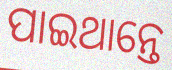
ପାଇଥାନ୍ତେ